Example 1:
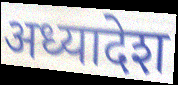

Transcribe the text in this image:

अध्यादेश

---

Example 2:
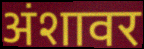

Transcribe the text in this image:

अंशावर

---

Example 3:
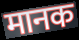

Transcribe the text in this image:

मानक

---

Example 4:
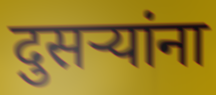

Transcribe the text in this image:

दुसऱ्यांना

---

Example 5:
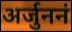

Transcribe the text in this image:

अर्जुननं